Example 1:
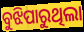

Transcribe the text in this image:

ବୁଝିପାରୁଥିଲା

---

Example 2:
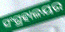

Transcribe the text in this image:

ସଂଗ୍ରହାଳୟର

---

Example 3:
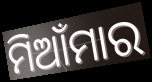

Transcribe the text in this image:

ମିଆଁମାର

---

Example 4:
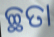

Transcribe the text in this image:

ଚ୍ଛତା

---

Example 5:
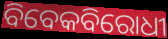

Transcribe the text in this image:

ବିବେକବିରୋଧୀ